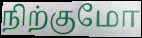
நிற்குமோ